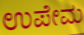
ಉಪೇಮ